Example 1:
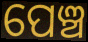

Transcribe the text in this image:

ପେଞ୍ଚ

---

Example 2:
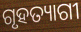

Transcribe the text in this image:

ଗୃହତ୍ୟାଗୀ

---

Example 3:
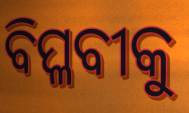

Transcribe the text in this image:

ବିପ୍ଳବୀକୁ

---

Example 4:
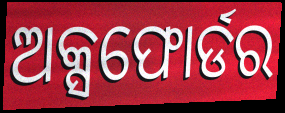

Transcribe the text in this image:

ଅକ୍ସଫୋର୍ଡର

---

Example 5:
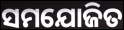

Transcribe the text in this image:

ସମଯୋଜିତ